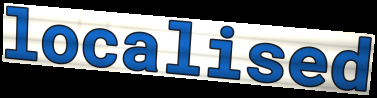
localised